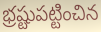
భ్రష్టుపట్టించిన